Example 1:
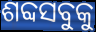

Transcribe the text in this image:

ଶବ୍ଦସବୁକୁ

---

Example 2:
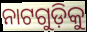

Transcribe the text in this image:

ନାଟଗୁଡ଼ିକୁ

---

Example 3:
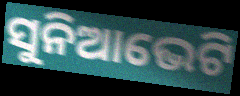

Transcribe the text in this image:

ସୁନିଆଭେଟି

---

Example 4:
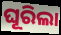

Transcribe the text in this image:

ଘୂରିଲା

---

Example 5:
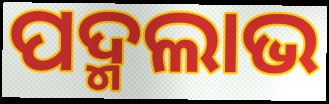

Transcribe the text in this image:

ପଦ୍ମଲାଭ